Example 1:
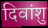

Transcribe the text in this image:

दिवांशु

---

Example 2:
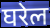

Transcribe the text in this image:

घरेल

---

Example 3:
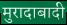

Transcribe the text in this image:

मुरादाबादी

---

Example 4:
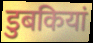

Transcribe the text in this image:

डुबकियां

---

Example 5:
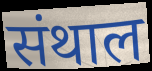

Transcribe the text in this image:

संथाल